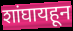
शांघायहून